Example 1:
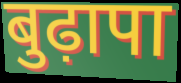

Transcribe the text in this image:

बुढ़ापा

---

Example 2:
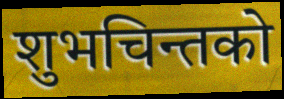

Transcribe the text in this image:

शुभचिन्तको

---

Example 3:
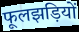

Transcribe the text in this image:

फूलझड़ियों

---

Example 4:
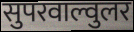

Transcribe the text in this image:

सुपरवाल्वुलर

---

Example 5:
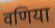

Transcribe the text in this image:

वणिया